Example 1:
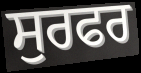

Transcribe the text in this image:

ਸੁਰਫਰ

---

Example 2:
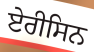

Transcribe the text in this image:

ਏਰੀਸਿਨ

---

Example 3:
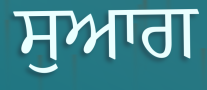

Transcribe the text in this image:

ਸੁਆਗ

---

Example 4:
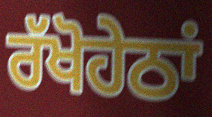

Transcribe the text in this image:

ਰੱਖੋਹੇਠਾਂ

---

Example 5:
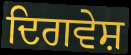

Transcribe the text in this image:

ਦਿਗਵੇਸ਼